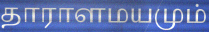
தாராளமயமும்